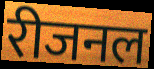
रीजनल